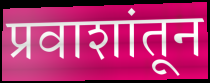
प्रवाशांतून